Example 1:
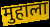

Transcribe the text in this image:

मुहाला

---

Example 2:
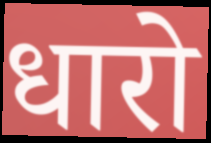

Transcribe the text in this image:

धारो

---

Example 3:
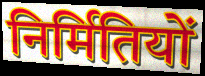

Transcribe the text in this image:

निर्मितियों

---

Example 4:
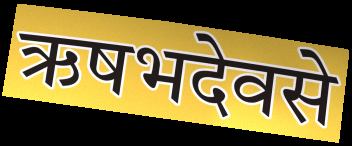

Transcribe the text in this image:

ऋषभदेवसे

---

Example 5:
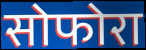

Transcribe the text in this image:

सोफोरा